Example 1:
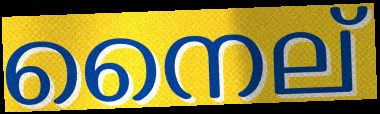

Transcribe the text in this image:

നൈല്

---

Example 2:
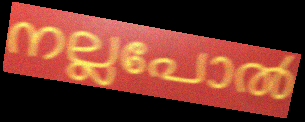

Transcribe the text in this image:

നല്ലപോൽ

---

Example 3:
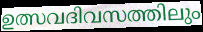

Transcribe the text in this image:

ഉത്സവദിവസത്തിലും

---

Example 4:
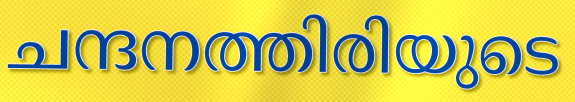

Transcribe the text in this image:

ചന്ദനത്തിരിയുടെ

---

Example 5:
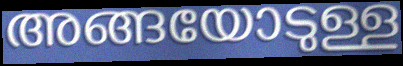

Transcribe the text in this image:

അങ്ങയോടുള്ള